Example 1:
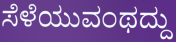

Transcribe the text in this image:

ಸೆಳೆಯುವಂಥದ್ದು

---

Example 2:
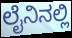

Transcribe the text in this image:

ಲೈನಿನಲ್ಲಿ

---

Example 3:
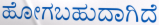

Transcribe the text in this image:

ಹೋಗಬಹುದಾಗಿದೆ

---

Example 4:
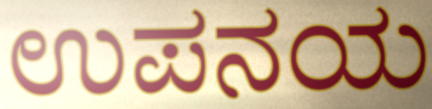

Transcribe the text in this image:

ಉಪನಯ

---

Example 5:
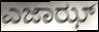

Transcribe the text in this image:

ಎಜಾಝ್